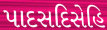
પાદસદિસેહિ